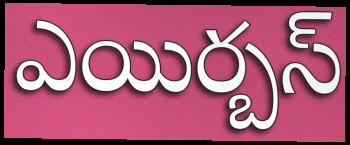
ఎయిర్బస్